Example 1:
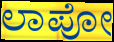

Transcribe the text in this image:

ಲಾಪೋ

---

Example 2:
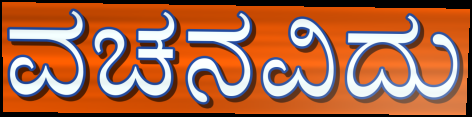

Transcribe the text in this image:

ವಚನವಿದು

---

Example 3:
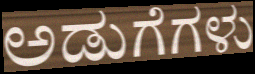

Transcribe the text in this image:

ಅಡುಗೆಗಳು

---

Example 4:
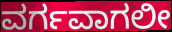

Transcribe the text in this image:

ವರ್ಗವಾಗಲೀ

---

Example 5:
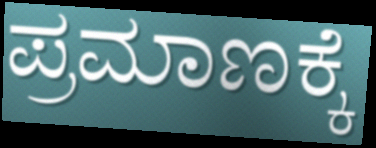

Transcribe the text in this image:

ಪ್ರಮಾಣಕ್ಕೆ